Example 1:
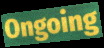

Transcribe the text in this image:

Ongoing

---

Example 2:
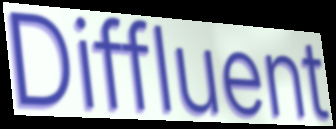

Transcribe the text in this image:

Diffluent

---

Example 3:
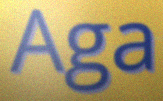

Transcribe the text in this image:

Aga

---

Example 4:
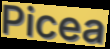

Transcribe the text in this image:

Picea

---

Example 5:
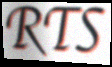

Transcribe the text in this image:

RTS